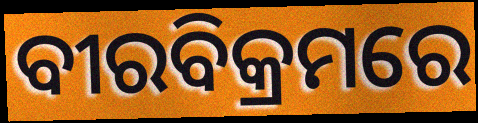
ବୀରବିକ୍ରମରେ